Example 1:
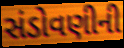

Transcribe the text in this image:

સંડોવણીની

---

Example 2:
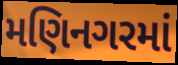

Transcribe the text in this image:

મણિનગરમાં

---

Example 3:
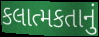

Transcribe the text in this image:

કલાત્મકતાનું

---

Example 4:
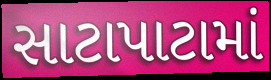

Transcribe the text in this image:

સાટાપાટામાં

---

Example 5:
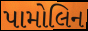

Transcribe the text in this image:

પામોલિન